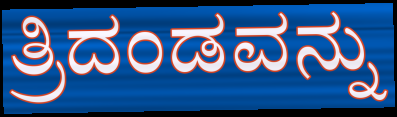
ತ್ರಿದಂಡವನ್ನು